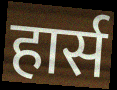
हार्स